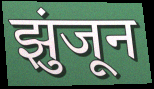
झुंजून